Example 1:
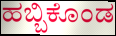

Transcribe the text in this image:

ಹಬ್ಬಿಕೊಂಡ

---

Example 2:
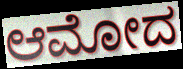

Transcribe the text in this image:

ಆಮೋದ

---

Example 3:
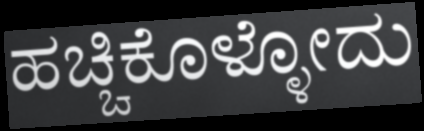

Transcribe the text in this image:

ಹಚ್ಚಿಕೊಳ್ಳೋದು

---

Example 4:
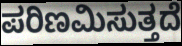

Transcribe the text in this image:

ಪರಿಣಮಿಸುತ್ತದೆ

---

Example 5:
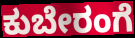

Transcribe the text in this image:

ಕುಬೇರಂಗೆ